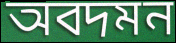
অবদমন